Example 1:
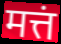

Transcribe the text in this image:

मत्तं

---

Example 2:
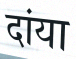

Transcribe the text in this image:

दांया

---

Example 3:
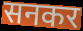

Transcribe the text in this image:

सनकर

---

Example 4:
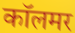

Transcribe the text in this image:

कॉलमर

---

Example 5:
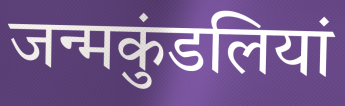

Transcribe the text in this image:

जन्मकुंडलियां